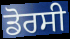
ਡੋਰਸੀ